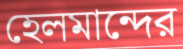
হেলমান্দের